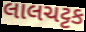
લાલચટ્ટક